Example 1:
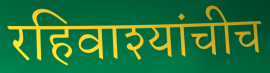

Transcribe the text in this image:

रहिवाश्यांचीच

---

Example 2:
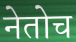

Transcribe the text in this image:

नेतोच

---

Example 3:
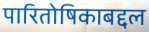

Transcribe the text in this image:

पारितोषिकाबद्दल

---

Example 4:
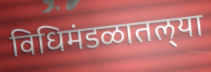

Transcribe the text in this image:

विधिमंडळातल्या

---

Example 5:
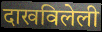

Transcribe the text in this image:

दाखविलेली